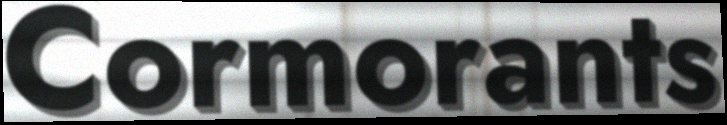
Cormorants